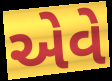
એવે